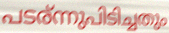
പടര്ന്നുപിടിച്ചതും